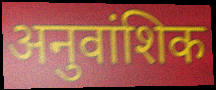
अनुवांशिक